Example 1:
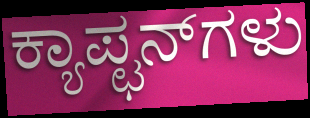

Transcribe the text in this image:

ಕ್ಯಾಪ್ಟನ್‌ಗಳು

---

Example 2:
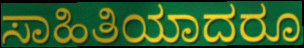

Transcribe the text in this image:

ಸಾಹಿತಿಯಾದರೂ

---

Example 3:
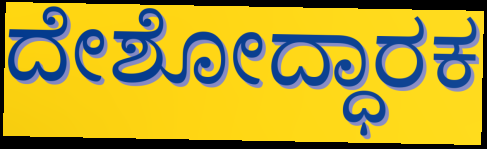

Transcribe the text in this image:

ದೇಶೋದ್ಧಾರಕ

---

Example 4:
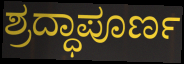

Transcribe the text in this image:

ಶ್ರದ್ಧಾಪೂರ್ಣ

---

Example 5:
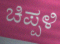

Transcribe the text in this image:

ಚಿಪ್ಪಳಿ